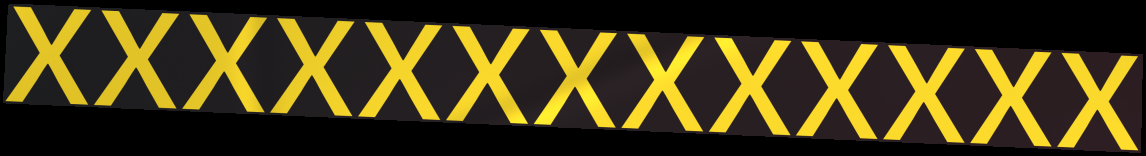
xxxxxxxxxxxxx